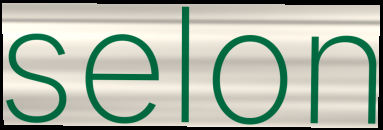
selon